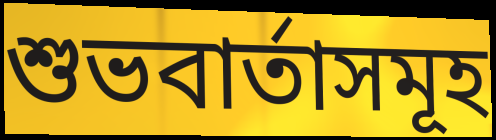
শুভবাৰ্তাসমূহ